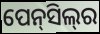
ପେନ୍‌ସିଲ୍‌ର